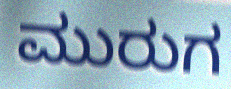
ಮುರುಗ